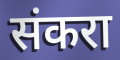
संकरा